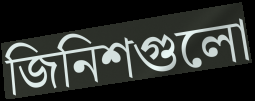
জিনিশগুলো